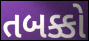
તબક્કો